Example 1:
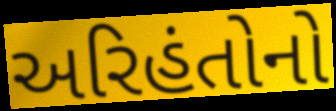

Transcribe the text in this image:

અરિહંતોનો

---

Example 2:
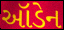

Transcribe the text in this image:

ઑડેન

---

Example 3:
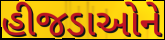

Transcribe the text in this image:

હીજડાઓને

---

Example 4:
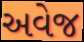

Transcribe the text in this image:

અવેજ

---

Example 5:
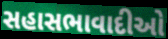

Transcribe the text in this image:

સહાસભાવાદીઓ